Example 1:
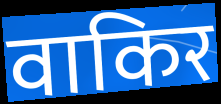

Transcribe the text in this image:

वाकिर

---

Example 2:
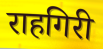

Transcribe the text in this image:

राहगिरी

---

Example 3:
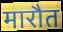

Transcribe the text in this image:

मारौत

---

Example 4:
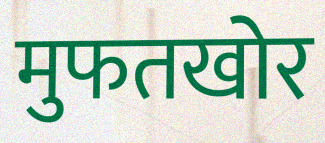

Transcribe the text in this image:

मुफतखोर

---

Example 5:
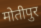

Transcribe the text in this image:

मोतीपुर